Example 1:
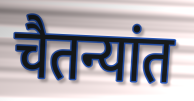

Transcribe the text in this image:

चैतन्यांत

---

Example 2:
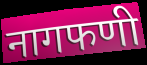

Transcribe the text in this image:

नागफणी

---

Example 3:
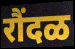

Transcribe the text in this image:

रौंदळ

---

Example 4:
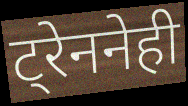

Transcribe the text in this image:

ट्रेननेही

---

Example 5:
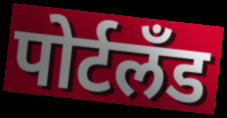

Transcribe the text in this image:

पोर्टलॅंड